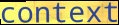
context